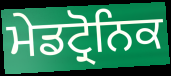
ਮੇਡਟ੍ਰੋਨਿਕ